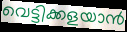
വെട്ടിക്കളയാൻ